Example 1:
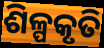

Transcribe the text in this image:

ଶିଳ୍ପକୃତି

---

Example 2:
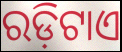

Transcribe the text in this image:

ରଡ଼ିଟାଏ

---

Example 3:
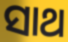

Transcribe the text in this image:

ସାଥ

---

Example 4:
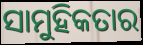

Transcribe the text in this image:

ସାମୁହିକତାର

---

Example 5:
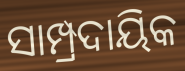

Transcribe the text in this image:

ସାମ୍ପ୍ରଦାୟିକ